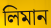
লিমান